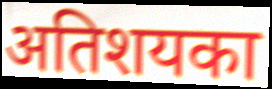
अतिशयका